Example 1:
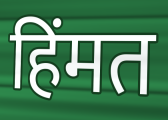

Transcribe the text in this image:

हिंमत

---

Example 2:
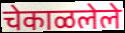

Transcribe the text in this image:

चेकाळलेले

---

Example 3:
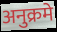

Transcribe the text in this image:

अनुक्रमे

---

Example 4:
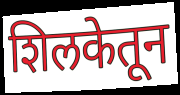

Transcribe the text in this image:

शिलकेतून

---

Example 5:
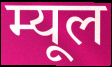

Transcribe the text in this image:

म्यूल